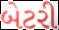
બેટરી